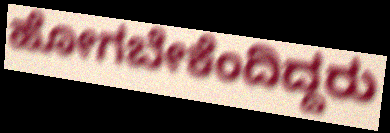
ಹೋಗಬೇಕೆಂದಿದ್ದರು